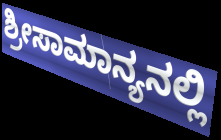
ಶ್ರೀಸಾಮಾನ್ಯನಲ್ಲಿ